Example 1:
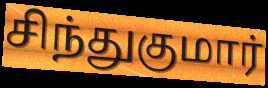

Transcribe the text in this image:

சிந்துகுமார்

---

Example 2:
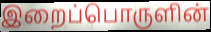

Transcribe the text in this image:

இறைப்பொருளின்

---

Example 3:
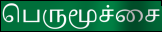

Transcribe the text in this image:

பெருமூச்சை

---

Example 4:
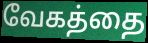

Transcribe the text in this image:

வேகத்தை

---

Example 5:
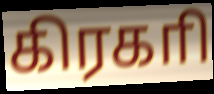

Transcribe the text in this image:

கிரகரி